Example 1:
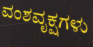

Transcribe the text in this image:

ವಂಶವೃಕ್ಷಗಳು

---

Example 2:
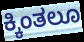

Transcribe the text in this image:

ಕ್ಕಿಂತಲೂ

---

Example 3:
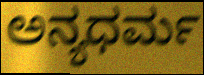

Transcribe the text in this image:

ಅನ್ಯಧರ್ಮ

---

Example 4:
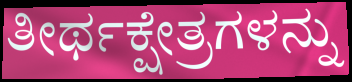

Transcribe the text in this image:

ತೀರ್ಥಕ್ಷೇತ್ರಗಳನ್ನು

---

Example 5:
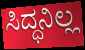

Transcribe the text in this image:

ಸಿದ್ಧನಿಲ್ಲ